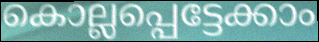
കൊല്ലപ്പെട്ടേക്കാം